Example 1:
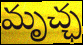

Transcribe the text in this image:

మృచ్ఛ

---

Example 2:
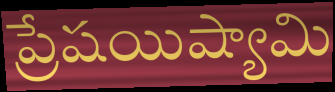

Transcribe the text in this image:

ప్రేషయిష్యామి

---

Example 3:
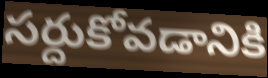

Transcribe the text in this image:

సర్దుకోవడానికి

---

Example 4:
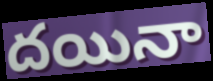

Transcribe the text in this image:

దయినా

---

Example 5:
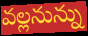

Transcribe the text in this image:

వల్లనున్ను